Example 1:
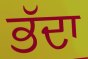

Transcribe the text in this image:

ਭੱਦਾ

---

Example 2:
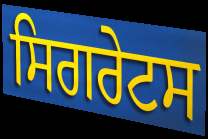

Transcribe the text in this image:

ਸਿਗਰੇਟਸ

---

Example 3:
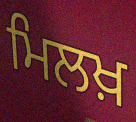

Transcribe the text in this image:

ਮਿਲਖ਼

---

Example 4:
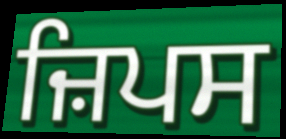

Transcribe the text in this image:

ਜ਼ਿਪਸ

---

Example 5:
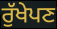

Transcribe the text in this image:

ਰੁੱਖੇਪਣ